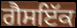
ਗੈਸਇੱਕ